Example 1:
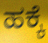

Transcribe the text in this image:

ಹಕ್ಕೆ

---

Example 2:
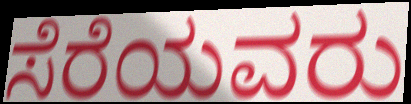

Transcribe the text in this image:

ಸೆರೆಯವರು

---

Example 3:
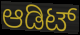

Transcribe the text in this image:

ಆಡಿಟ್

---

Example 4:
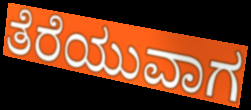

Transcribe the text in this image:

ತೆರೆಯುವಾಗ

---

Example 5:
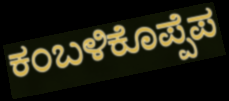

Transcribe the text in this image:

ಕಂಬಳಿಕೊಪ್ಪೆಪ